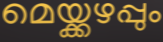
മെയ്ക്കഴപ്പും